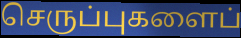
செருப்புகளைப்